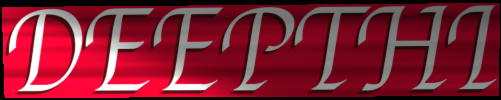
DEEPTHI